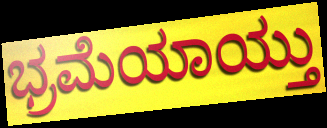
ಭ್ರಮೆಯಾಯ್ತು